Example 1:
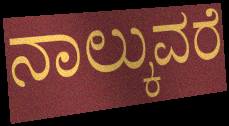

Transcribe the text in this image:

ನಾಲ್ಕುವರೆ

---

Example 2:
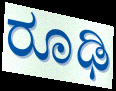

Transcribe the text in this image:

ರೂಢಿ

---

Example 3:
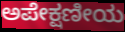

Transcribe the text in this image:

ಅಪೇಕ್ಷಣೀಯ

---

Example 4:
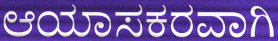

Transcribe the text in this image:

ಆಯಾಸಕರವಾಗಿ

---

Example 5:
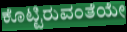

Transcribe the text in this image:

ಕೊಟ್ಟಿರುವಂತೆಯೇ